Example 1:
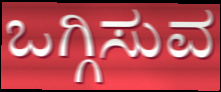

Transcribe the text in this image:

ಒಗ್ಗಿಸುವ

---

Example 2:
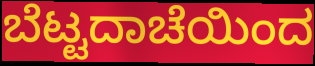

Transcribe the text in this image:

ಬೆಟ್ಟದಾಚೆಯಿಂದ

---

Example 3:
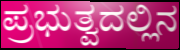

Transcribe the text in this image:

ಪ್ರಭುತ್ವದಲ್ಲಿನ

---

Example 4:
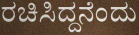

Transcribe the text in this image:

ರಚಿಸಿದ್ದನೆಂದು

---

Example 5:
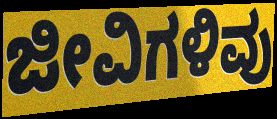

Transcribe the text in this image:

ಜೀವಿಗಳಿವು